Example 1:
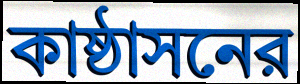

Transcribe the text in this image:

কাষ্ঠাসনের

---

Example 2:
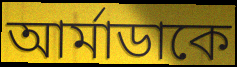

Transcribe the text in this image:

আর্মাডাকে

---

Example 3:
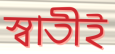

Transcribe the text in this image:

স্বাতীই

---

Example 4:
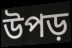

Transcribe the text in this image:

উপড়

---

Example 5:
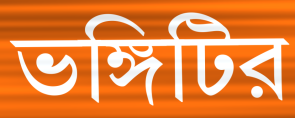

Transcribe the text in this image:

ভঙ্গিটির